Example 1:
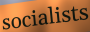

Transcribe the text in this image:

socialists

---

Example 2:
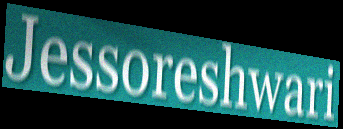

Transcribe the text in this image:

Jessoreshwari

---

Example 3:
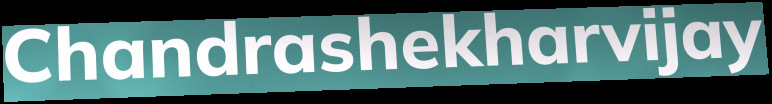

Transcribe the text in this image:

Chandrashekharvijay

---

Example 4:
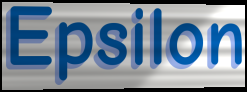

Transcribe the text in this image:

Epsilon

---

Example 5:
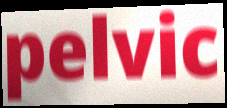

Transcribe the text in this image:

pelvic